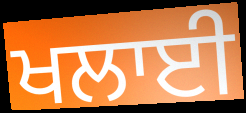
ਖਲਾਈ